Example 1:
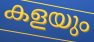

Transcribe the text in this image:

കളയും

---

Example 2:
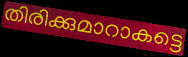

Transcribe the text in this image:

തിരിക്കുമാറാകട്ടെ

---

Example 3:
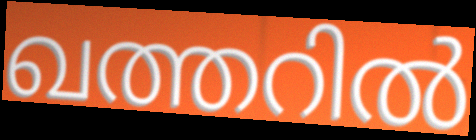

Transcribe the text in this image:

ഖത്തറിൽ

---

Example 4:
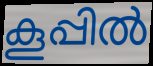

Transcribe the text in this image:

കൂപ്പിൽ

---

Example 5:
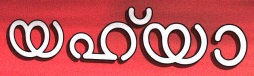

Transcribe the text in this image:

യഹ്‌യാ